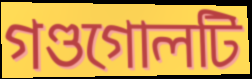
গণ্ডগোলটি